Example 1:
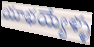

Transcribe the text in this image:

యాభయ్యేళ్ళ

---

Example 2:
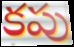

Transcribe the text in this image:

కపు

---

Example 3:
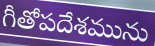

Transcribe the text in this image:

గీతోపదేశమును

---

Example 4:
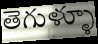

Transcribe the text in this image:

తెగుళ్ళూ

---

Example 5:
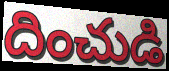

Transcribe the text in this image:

దించుడి